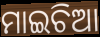
ମାଇଚିଆ